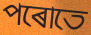
পৰোতে